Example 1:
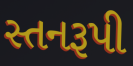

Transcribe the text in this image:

સ્તનરૂપી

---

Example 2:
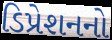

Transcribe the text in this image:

ડિપ્રેશનનો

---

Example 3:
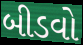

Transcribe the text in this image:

બીડવો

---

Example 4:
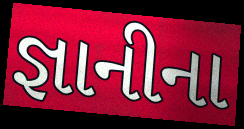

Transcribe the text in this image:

જ્ઞાનીના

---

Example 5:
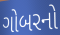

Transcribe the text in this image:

ગોબરનો